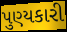
પુણ્યકારી